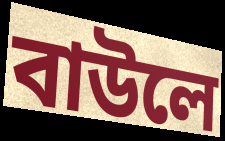
বাউলে